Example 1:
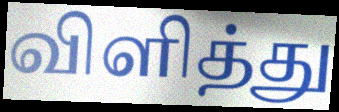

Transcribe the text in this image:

விளித்து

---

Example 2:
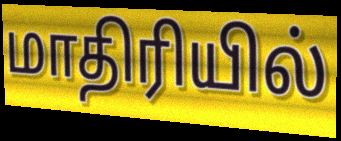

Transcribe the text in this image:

மாதிரியில்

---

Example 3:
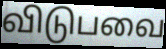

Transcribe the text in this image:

விடுபவை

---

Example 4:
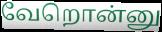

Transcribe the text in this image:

வேறொன்னு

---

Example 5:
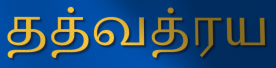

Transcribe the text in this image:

தத்வத்ரய